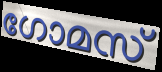
ഗോമസ്